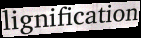
lignification